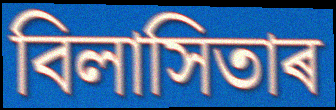
বিলাসিতাৰ